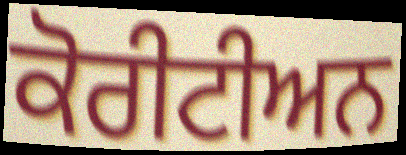
ਕੋਰੀਟੀਅਨ